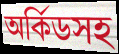
অর্কিডসহ